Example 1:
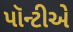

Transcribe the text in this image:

પૉન્ટીએ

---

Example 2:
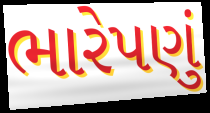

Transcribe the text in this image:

ભારેપણું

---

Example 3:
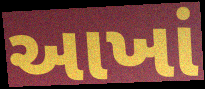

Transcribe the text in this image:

આખાં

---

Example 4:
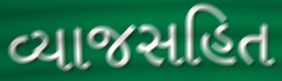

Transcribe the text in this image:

વ્યાજસહિત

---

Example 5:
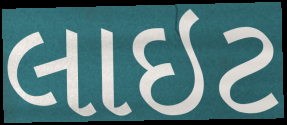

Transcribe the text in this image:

લાઇટ